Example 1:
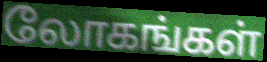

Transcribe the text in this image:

லோகங்கள்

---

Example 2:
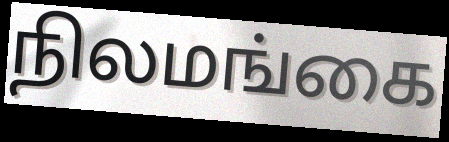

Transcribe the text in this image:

நிலமங்கை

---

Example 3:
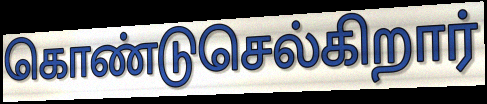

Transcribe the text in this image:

கொண்டுசெல்கிறார்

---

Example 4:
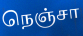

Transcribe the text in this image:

நெஞ்சா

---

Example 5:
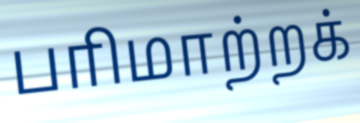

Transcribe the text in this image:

பரிமாற்றக்